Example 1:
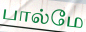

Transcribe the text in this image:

பால்மே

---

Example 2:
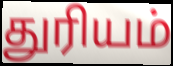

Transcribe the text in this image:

துரியம்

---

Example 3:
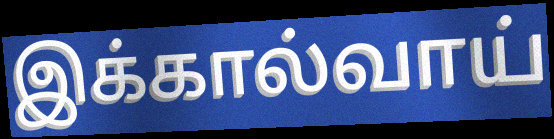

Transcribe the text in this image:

இக்கால்வாய்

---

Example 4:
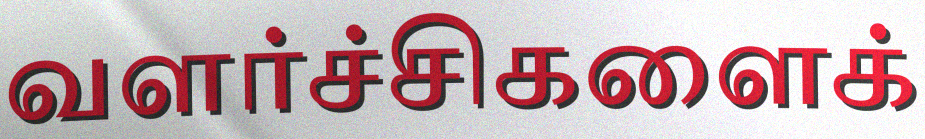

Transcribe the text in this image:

வளர்ச்சிகளைக்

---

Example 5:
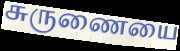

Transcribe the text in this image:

சுருணையை